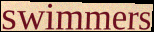
swimmers